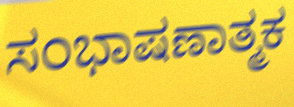
ಸಂಭಾಷಣಾತ್ಮಕ